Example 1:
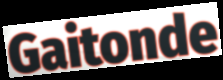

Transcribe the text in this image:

Gaitonde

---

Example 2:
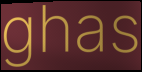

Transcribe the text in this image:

ghas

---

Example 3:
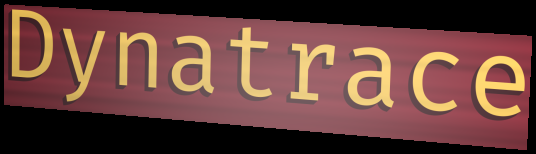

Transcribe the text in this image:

Dynatrace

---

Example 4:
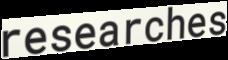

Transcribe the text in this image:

researches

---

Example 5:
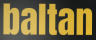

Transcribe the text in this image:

baltan